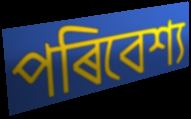
পৰিবেশ্য